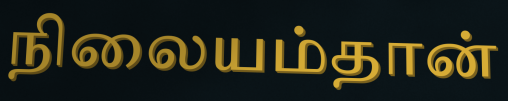
நிலையம்தான்